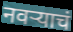
नवर्‍याचं